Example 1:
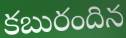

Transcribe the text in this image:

కబురందిన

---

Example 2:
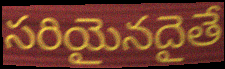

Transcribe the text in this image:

సరియైనదైతే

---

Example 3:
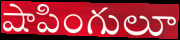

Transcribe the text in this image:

షాపింగులూ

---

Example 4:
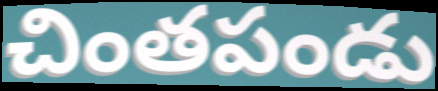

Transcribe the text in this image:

చింతపండు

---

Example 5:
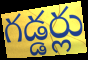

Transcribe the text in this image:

గడ్డర్లు